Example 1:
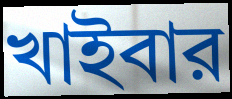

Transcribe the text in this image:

খাইবার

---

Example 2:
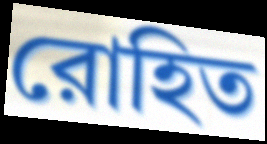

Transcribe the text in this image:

রোহিত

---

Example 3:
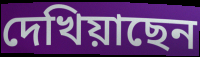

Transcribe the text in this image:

দেখিয়াছেন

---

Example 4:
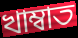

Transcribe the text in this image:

খাম্বাত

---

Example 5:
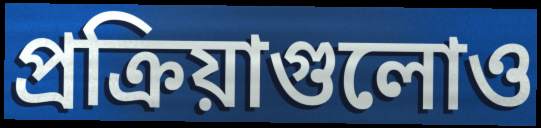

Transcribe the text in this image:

প্রক্রিয়াগুলোও